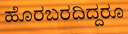
ಹೊರಬರದಿದ್ದರೂ